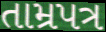
તામ્રપત્ર